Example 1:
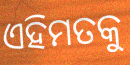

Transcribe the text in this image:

ଏହିମତକୁ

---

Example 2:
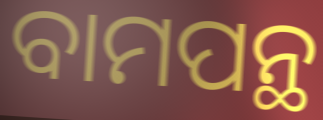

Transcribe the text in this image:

ବାମପନ୍ଥ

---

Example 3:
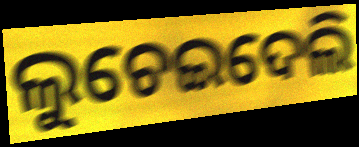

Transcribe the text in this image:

ଲୁଚେଇଦେଲି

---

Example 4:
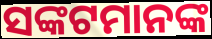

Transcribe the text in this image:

ସଙ୍କଟମାନଙ୍କ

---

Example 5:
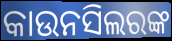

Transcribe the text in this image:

କାଉନସିଲରଙ୍କ